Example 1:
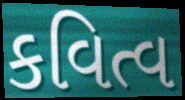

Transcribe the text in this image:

કવિત્વ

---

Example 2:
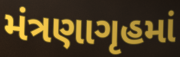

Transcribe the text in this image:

મંત્રણાગૃહમાં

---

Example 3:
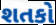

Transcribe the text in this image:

શતકો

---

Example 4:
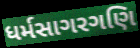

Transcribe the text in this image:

ધર્મસાગરગણિ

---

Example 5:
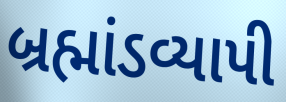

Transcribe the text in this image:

બ્રહ્માંડવ્યાપી